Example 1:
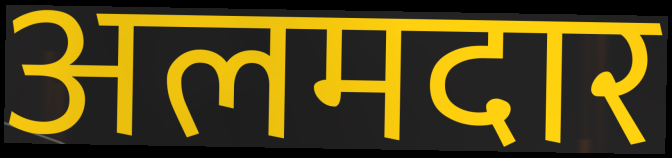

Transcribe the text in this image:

अलमदार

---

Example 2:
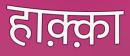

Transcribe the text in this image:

हाक़्क़ा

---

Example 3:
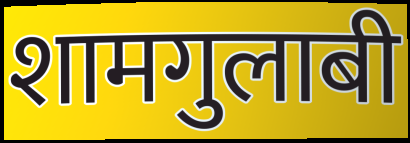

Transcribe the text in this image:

शामगुलाबी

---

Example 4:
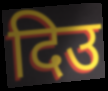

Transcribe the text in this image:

दिउ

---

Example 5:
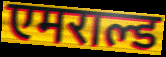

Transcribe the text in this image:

एमराल्ड